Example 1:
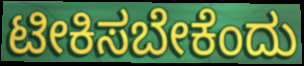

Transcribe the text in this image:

ಟೀಕಿಸಬೇಕೆಂದು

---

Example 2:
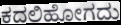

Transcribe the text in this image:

ಕದಲಿಹೋಗದು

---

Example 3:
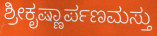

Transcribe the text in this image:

ಶ್ರೀಕೃಷ್ಣಾರ್ಪಣಮಸ್ತು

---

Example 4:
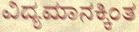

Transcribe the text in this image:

ವಿದ್ಯಮಾನಕ್ಕಿಂತ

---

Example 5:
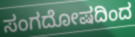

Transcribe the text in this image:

ಸಂಗದೋಷದಿಂದ